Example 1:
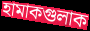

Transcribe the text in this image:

হামাকগুলাক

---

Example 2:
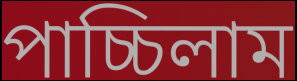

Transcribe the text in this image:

পাচ্চিলাম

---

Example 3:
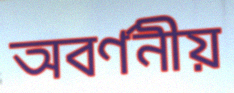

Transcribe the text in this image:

অবর্ণনীয়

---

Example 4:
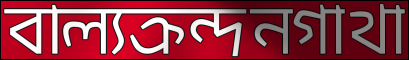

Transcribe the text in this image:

বাল্যক্রন্দনগাথা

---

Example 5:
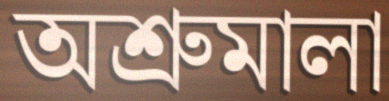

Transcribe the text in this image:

অশ্রুমালা